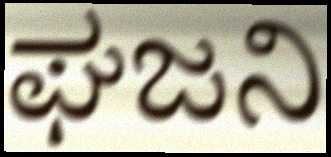
ಘಜನಿ